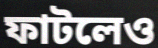
ফাটলেও